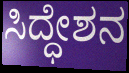
ಸಿದ್ಧೇಶನ